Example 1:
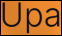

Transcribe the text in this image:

Upa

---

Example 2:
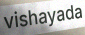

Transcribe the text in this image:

vishayada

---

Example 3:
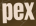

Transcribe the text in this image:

pex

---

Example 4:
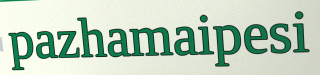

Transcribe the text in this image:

pazhamaipesi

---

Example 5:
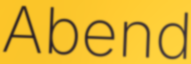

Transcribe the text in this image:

Abend